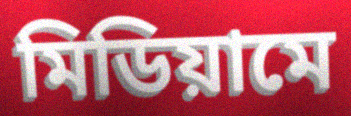
মিডিয়ামে